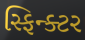
સ્ફિન્ક્ટર